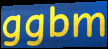
ggbm